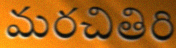
మరచితిరి